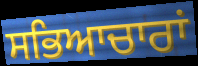
ਸਭਿਆਚਾਰਾਂ